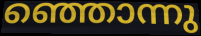
ഞ്ഞൊന്നു